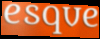
esque